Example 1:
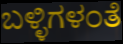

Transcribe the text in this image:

ಬಳ್ಳಿಗಳಂತೆ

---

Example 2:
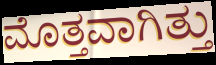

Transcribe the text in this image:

ಮೊತ್ತವಾಗಿತ್ತು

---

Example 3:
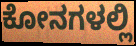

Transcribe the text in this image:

ಕೋನಗಳಲ್ಲಿ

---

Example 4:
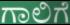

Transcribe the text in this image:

ಗಾಲಿಗೆ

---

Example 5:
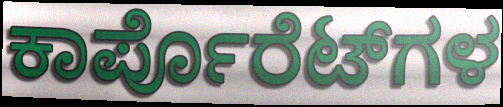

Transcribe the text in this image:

ಕಾರ್ಪೊರೆಟ್‌ಗಳ